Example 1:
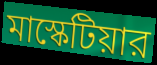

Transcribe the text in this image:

মাস্কেটিয়ার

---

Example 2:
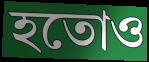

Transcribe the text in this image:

হতোও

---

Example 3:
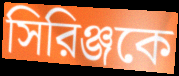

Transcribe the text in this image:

সিরিঞ্জকে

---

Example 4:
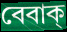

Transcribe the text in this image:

বেবাক্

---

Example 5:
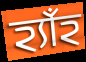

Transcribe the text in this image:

হ্যাঁহ